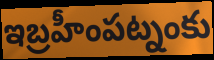
ఇబ్రహీంపట్నంకు